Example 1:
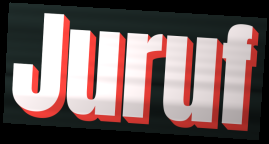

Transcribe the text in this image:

Juruf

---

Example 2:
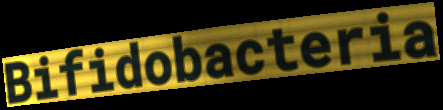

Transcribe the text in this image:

Bifidobacteria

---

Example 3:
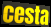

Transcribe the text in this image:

cesta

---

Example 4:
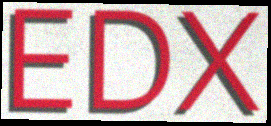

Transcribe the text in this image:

EDX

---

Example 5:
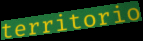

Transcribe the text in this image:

territorio